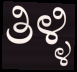
ತಿಳ್ಳಿ